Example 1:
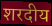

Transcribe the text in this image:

शरदीय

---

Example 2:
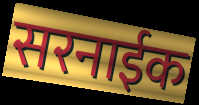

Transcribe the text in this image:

सरनाईक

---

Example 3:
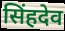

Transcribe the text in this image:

सिंहदेव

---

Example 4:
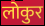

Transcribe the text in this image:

लोकुर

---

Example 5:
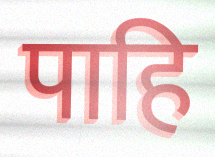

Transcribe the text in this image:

पाहि